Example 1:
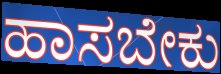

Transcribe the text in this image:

ಹಾಸಬೇಕು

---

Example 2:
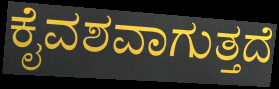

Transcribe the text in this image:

ಕೈವಶವಾಗುತ್ತದೆ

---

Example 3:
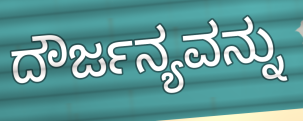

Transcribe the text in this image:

ದೌರ್ಜನ್ಯವನ್ನು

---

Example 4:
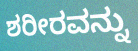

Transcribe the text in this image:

ಶರೀರವನ್ನು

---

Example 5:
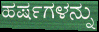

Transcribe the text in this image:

ಹರ್ಷಗಳನ್ನು